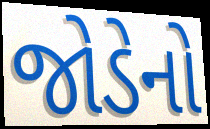
જોડેનો